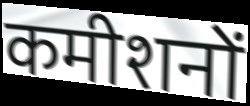
कमीशनों